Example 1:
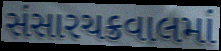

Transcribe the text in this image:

સંસારચક્રવાલમાં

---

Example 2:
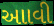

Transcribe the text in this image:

આાવી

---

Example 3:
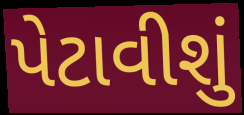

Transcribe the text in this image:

પેટાવીશું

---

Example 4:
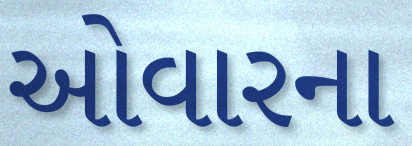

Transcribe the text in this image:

ઓવારના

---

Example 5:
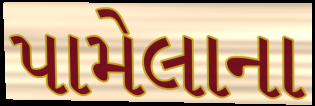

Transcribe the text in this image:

પામેલાના